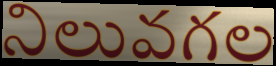
నిలువగల